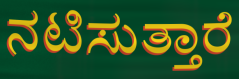
ನಟಿಸುತ್ತಾರೆ